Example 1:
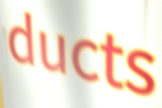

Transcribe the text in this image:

ducts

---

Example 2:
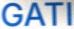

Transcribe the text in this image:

GATI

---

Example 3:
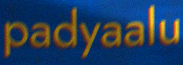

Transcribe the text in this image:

padyaalu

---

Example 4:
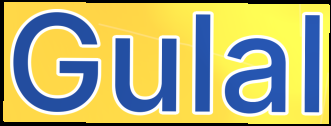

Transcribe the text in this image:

Gulal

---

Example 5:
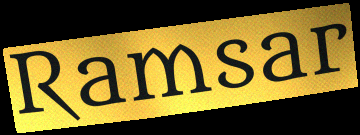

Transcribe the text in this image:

Ramsar